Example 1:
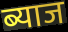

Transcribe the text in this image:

ब्याज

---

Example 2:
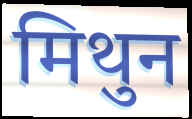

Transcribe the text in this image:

मिथुन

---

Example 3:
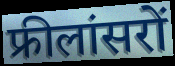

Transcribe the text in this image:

फ्रीलांसरों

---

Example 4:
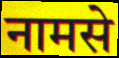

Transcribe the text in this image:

नामसे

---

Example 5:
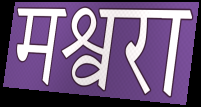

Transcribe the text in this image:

मश्वरा